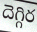
దెగ్గిర